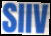
SIIV